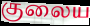
குலைய